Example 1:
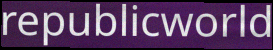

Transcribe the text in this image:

republicworld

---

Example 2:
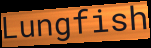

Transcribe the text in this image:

Lungfish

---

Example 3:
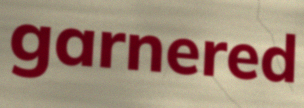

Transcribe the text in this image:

garnered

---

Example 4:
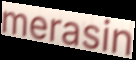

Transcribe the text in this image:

merasin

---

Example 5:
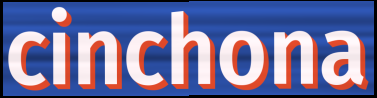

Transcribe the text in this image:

cinchona